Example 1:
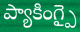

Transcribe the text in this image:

ప్యాకింగ్పై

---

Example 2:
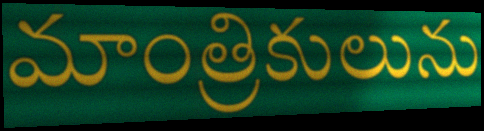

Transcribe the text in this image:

మాంత్రికులును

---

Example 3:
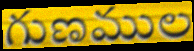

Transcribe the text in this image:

గుణముల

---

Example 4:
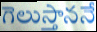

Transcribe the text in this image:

గెలుస్తాననే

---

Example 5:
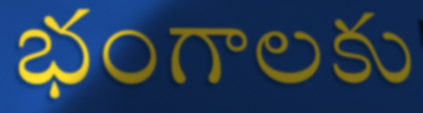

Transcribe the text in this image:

భంగాలకు